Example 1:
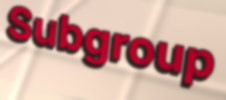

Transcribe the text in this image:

Subgroup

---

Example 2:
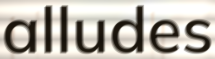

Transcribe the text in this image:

alludes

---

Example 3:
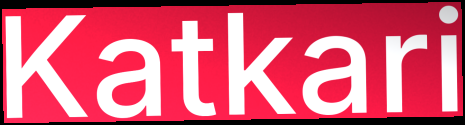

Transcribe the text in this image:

Katkari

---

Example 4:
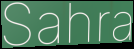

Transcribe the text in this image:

Sahra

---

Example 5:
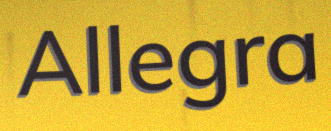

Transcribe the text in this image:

Allegra